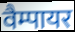
वैम्पायर